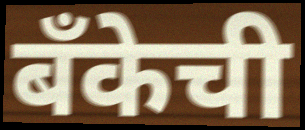
बँकेची